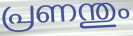
പ്രണന്തും